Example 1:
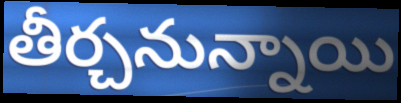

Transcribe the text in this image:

తీర్చనున్నాయి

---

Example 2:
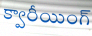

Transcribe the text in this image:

క్వారీయింగ్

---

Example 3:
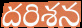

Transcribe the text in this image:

దరిశన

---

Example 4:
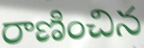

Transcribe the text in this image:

రాణించిన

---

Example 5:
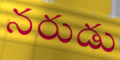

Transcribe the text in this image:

నరుడు